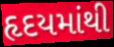
હૃદયમાંથી